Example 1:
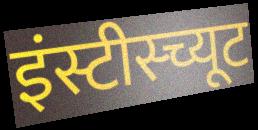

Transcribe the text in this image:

इंस्टीस्च्यूट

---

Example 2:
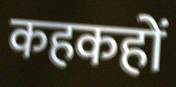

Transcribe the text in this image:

कहकहों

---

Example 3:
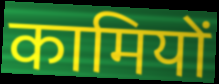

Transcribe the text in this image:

कामियों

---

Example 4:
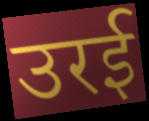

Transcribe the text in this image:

उरई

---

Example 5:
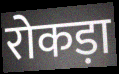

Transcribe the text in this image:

रोकड़ा